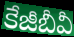
కేజీబీవీ